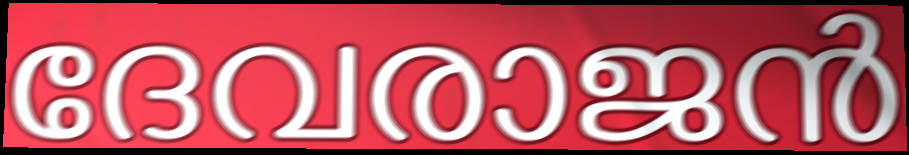
ദേവരാജൻ